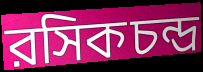
রসিকচন্দ্র